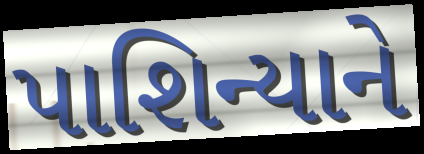
પાશિન્યાને